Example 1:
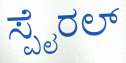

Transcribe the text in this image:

ಸ್ಪೈರಲ್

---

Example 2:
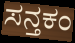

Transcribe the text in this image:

ಸನ್ತಕಂ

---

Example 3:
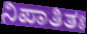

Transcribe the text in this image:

ನಿಪಾತಿತಃ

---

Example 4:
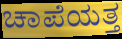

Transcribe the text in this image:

ಚಾಪೆಯತ್ತ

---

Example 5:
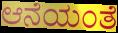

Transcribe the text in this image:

ಆನೆಯಂತೆ